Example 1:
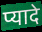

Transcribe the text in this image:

प्यादे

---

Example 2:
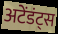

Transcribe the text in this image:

अटेंडंट्स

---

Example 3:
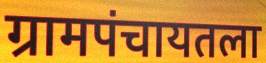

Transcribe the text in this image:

ग्रामपंचायतला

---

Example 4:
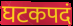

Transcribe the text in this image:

घटकपदं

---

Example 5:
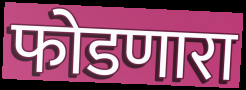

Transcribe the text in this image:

फोडणारा